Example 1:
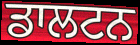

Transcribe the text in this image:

ਡਾਲਟਨ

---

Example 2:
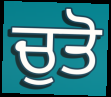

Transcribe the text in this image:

ਚੁਤੋ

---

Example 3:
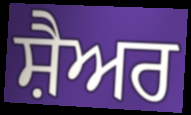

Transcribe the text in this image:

ਸ਼ੈਅਰ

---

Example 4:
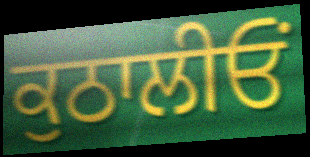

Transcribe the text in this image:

ਕੁਠਾਲੀਓਂ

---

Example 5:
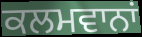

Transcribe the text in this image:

ਕਲਮਵਾਨਾਂ